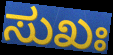
ಸುಖಃ